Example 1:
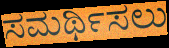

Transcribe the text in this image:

ಸಮರ್ಥಿಸಲು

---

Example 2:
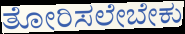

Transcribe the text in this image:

ತೋರಿಸಲೇಬೇಕು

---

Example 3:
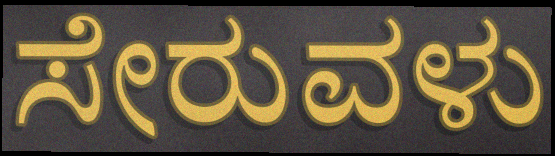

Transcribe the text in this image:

ಸೇರುವಳು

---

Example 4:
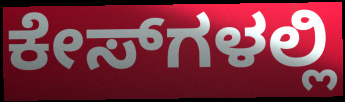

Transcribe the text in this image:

ಕೇಸ್‌ಗಳಲ್ಲಿ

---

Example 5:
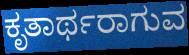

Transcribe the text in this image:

ಕೃತಾರ್ಥರಾಗುವ